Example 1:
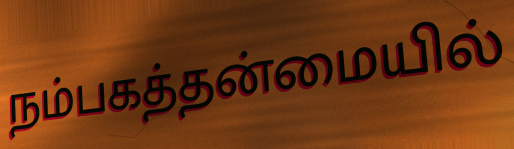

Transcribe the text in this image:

நம்பகத்தன்மையில்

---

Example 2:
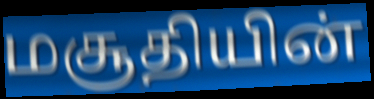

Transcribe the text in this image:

மசூதியின்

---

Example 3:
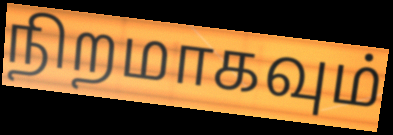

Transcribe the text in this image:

நிறமாகவும்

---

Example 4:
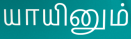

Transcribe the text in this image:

யாயினும்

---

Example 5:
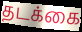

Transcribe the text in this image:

தடக்கை